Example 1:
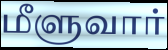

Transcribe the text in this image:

மீளுவார்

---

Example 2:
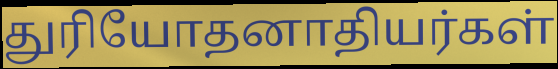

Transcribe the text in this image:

துரியோதனாதியர்கள்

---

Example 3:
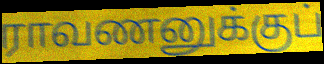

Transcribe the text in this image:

ராவணனுக்குப்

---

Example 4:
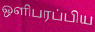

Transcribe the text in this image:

ஒளிபரப்பிய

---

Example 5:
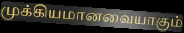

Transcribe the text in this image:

முக்கியமானவையாகும்